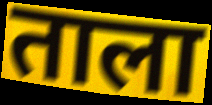
ताला